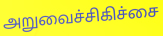
அறுவைச்சிகிச்சை